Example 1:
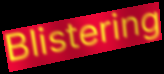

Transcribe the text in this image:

Blistering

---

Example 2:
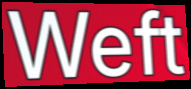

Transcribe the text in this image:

Weft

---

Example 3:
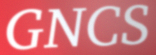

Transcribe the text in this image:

GNCS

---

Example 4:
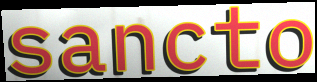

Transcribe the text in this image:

sancto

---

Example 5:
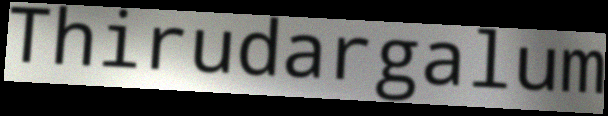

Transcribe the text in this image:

Thirudargalum